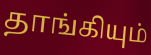
தாங்கியும்